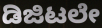
ಡಿಜಿಟಲೇ